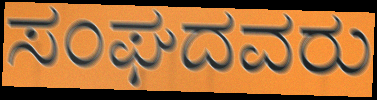
ಸಂಘದವರು